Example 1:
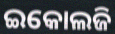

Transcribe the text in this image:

ଇକୋଲଜି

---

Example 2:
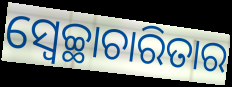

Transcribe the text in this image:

ସ୍ୱେଚ୍ଛାଚାରିତାର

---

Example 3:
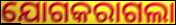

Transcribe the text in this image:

ଯୋଗକରାଗଲା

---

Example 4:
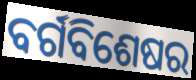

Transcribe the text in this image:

ବର୍ଗବିଶେଷର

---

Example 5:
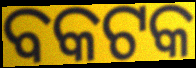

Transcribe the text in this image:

ବକଟକ